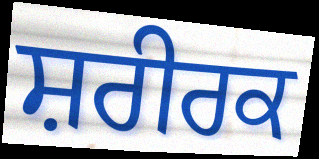
ਸ਼ਰੀਰਕ